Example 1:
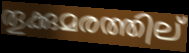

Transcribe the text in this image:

തൂക്കുമരത്തില്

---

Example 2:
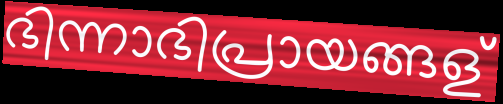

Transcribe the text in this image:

ഭിന്നാഭിപ്രായങ്ങള്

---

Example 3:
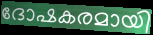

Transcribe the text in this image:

ദോഷകരമായി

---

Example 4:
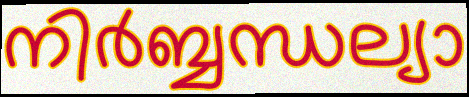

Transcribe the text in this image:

നിർബ്ബന്ധല്യാ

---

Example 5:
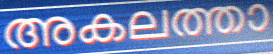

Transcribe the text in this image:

അകലത്താ